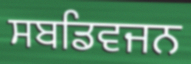
ਸਬਡਿਵਜਨ